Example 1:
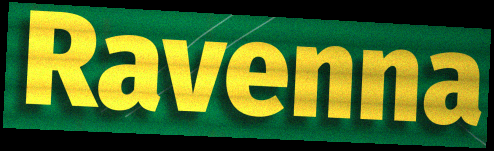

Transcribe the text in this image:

Ravenna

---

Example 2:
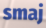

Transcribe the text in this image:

smaj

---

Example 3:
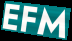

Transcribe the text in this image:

EFM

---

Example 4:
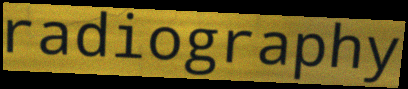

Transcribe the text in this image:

radiography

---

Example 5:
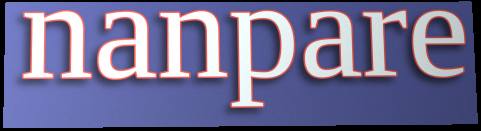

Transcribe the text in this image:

nanpare